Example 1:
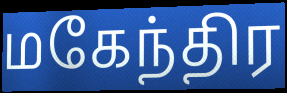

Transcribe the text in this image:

மகேந்திர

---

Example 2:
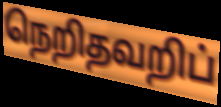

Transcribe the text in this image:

நெறிதவறிப்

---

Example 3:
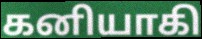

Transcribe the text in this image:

கனியாகி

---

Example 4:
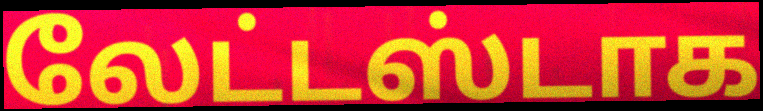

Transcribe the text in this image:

லேட்டஸ்டாக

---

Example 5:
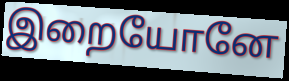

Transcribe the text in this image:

இறையோனே